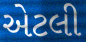
એટલી